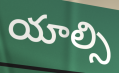
యాల్సి